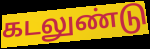
கடலுண்டு